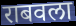
राबवला